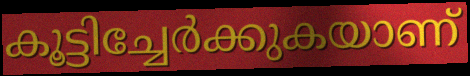
കൂട്ടിച്ചേർക്കുകയാണ്